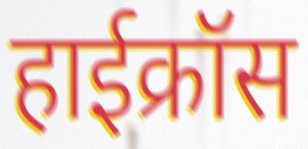
हाईक्रॉस